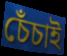
চেঁচাই